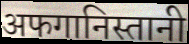
अफगानिस्तानी